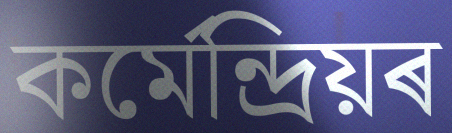
কৰ্মেন্দ্ৰিয়ৰ